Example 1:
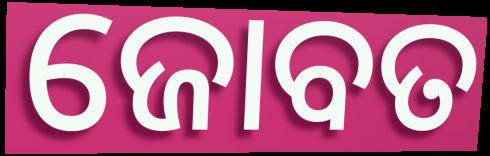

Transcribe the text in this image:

ଜୋବତ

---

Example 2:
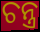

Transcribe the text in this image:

ଚନ୍ତ୍ର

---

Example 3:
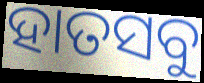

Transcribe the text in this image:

ହାତସବୁ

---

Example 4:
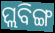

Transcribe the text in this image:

ପ୍ଲବିଙ୍ଗ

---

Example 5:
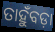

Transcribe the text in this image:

ତାହୁଁବଡ଼ା